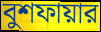
বুশফায়ার